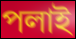
পলাই